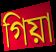
গিয়া